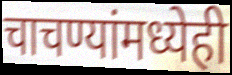
चाचण्यांमध्येही